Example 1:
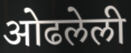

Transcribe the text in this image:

ओढलेली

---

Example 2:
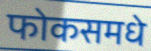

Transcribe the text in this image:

फोकसमधे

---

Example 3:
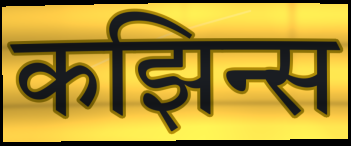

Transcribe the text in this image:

कझिन्स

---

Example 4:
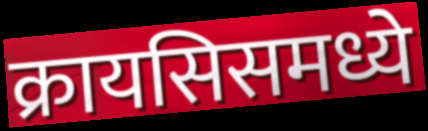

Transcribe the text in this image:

क्रायसिसमध्ये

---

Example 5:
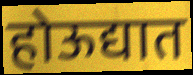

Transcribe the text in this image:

होऊद्यात